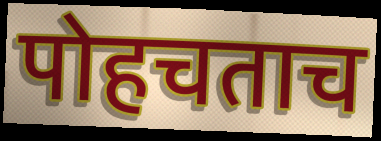
पोहचताच